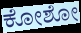
ಕೋಶೋ